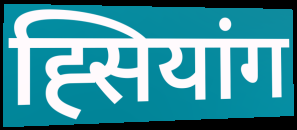
ह्सियांग